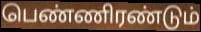
பெண்ணிரண்டும்